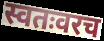
स्वतःवरच